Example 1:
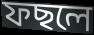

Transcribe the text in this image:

ফছলে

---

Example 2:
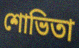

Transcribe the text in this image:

শোভিতা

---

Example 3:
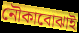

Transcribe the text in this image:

নৌকাবোঝাই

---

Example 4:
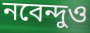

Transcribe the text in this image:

নবেন্দুও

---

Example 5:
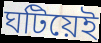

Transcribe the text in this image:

ঘটিয়েই